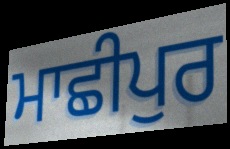
ਮਾਛੀਪੁਰ